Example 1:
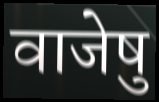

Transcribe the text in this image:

वाजेषु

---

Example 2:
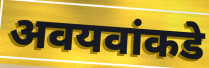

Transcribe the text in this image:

अवयवांकडे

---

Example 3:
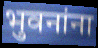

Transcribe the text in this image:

भुवनांना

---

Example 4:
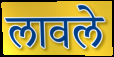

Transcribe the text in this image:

लावले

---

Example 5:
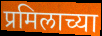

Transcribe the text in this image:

प्रमिलाच्या